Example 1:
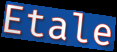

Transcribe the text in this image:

Etale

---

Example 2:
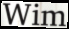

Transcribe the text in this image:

Wim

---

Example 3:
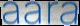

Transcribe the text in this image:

aara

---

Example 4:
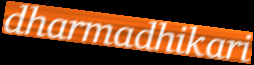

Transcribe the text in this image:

dharmadhikari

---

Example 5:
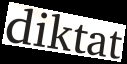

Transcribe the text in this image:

diktat